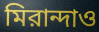
মিরান্দাও